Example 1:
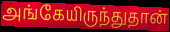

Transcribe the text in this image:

அங்கேயிருந்துதான்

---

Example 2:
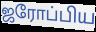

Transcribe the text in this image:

ஜரோப்பிய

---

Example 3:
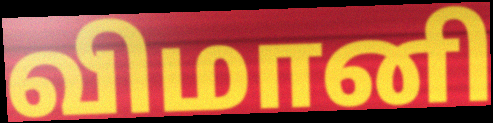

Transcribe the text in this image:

விமானி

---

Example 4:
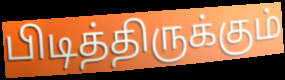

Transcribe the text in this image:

பிடித்திருக்கும்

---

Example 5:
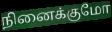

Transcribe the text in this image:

நினைக்குமோ